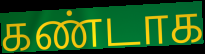
கண்டாக